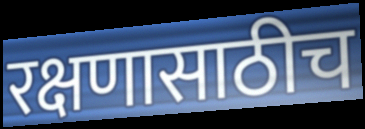
रक्षणासाठीच